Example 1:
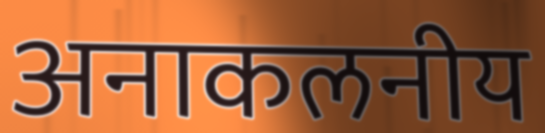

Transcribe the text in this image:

अनाकलनीय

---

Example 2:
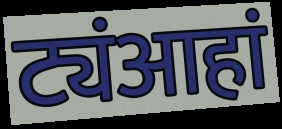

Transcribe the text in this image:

ट्यंआहां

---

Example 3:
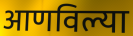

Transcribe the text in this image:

आणविल्या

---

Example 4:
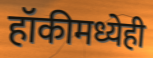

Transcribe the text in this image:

हॉकीमध्येही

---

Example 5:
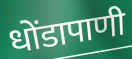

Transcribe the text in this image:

धोंडापाणी